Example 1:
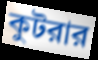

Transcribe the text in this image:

কুটরার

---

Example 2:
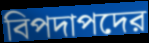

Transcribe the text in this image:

বিপদাপদের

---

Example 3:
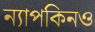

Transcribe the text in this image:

ন্যাপকিনও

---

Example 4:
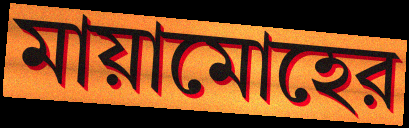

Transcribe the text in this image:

মায়ামোহের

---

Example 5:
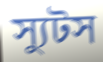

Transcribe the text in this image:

স্যুটস